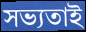
সভ্যতাই